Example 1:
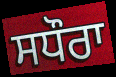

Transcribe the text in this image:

ਸਧੌਰਾ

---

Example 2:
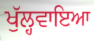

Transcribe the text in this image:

ਖੁੱਲ੍ਹਵਾਇਆ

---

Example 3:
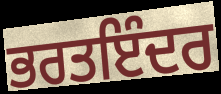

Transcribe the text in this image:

ਭਰਤਇੰਦਰ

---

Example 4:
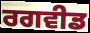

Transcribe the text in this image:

ਰਗਵੀਡ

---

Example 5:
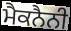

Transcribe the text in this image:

ਮੈਕਨੈਨੀ